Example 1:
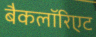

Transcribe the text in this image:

बैकलॉरिएट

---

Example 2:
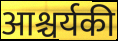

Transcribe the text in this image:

आश्चर्यकी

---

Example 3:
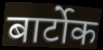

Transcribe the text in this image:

बार्टोक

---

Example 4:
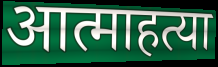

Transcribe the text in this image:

आत्माहत्या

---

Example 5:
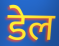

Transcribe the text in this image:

डेल